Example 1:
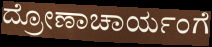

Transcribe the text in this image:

ದ್ರೋಣಾಚಾರ್ಯಂಗೆ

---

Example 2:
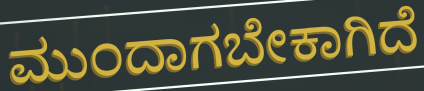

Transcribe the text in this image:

ಮುಂದಾಗಬೇಕಾಗಿದೆ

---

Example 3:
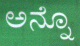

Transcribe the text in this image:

ಅನ್ನೊ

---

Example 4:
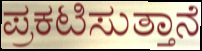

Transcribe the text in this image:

ಪ್ರಕಟಿಸುತ್ತಾನೆ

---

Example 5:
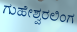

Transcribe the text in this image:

ಗುಹೇಶ್ವರಲಿಂಗ